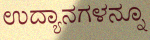
ಉದ್ಯಾನಗಳನ್ನೂ